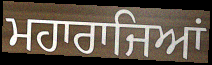
ਮਹਾਰਾਜਿਆਂ